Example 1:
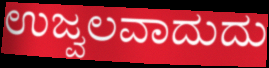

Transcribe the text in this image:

ಉಜ್ವಲವಾದುದು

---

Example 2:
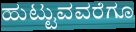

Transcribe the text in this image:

ಹುಟ್ಟುವವರೆಗೂ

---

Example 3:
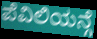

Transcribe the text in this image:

ಪೆವಿಲಿಯನ್ಗೆ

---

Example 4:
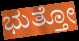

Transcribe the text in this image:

ಭುತ್ತೋ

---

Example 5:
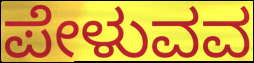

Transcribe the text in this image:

ಪೇಳುವವ